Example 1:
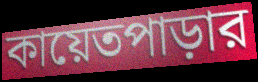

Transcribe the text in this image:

কায়েতপাড়ার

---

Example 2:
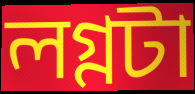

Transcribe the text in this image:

লগ্নটা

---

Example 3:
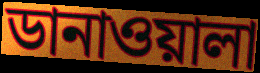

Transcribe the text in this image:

ডানাওয়ালা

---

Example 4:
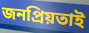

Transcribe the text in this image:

জনপ্রিয়তাই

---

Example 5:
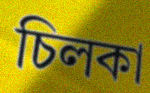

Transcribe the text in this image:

চিলকা